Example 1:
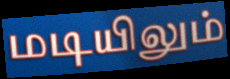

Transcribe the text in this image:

மடியிலும்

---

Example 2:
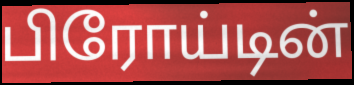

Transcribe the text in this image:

பிரோய்டின்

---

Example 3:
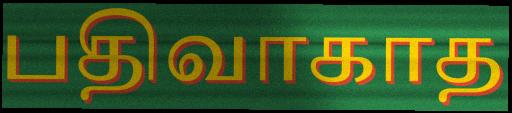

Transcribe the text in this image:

பதிவாகாத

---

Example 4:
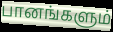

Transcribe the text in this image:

பானங்களும்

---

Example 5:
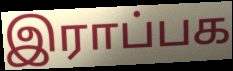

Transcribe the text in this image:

இராப்பக